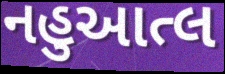
નહુઆત્લ